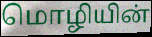
மொழியின்